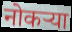
नोकऱ्या